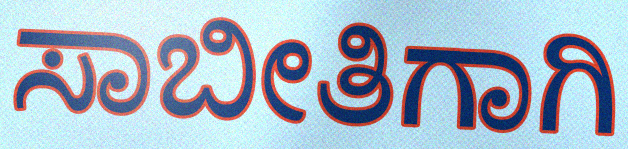
ಸಾಬೀತಿಗಾಗಿ